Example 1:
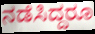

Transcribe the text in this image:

ನಡೆಸಿದ್ದರೂ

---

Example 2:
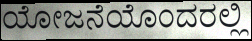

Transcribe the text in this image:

ಯೋಜನೆಯೊಂದರಲ್ಲಿ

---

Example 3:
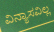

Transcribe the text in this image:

ವಿನ್ಯಾಸವಿಲ್ಲ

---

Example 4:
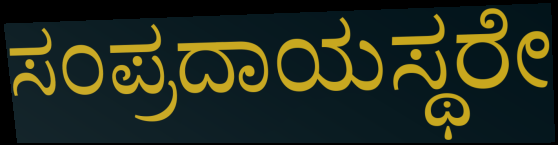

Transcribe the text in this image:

ಸಂಪ್ರದಾಯಸ್ಥರೇ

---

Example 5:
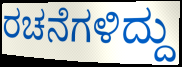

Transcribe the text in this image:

ರಚನೆಗಳಿದ್ದು